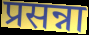
प्रसन्ना